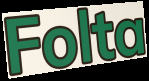
Folta